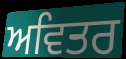
ਅਵਿਤਰ